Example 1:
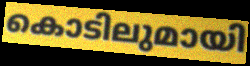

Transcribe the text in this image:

കൊടിലുമായി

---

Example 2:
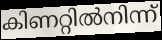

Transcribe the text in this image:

കിണറ്റിൽനിന്ന്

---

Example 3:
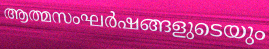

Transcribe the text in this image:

ആത്മസംഘർഷങ്ങളുടെയും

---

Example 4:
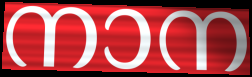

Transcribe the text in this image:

നാന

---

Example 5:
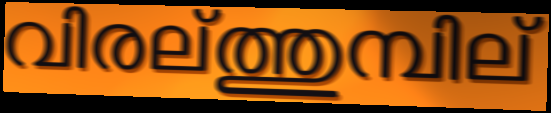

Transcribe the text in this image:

വിരല്ത്തുമ്പില്